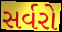
સર્વરો